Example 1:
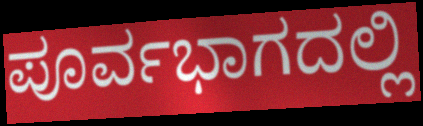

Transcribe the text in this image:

ಪೂರ್ವಭಾಗದಲ್ಲಿ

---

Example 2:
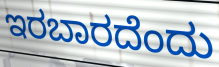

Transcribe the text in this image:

ಇರಬಾರದೆಂದು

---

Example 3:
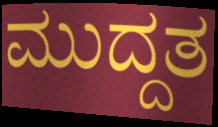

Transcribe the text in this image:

ಮುದ್ದತ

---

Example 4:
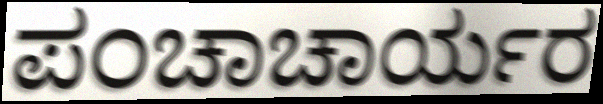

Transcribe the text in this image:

ಪಂಚಾಚಾರ್ಯರ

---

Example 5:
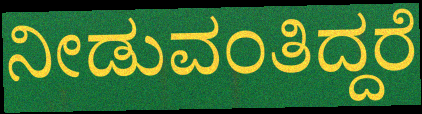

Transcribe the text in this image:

ನೀಡುವಂತಿದ್ದರೆ